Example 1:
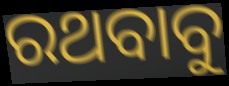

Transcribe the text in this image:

ରଥବାବୁ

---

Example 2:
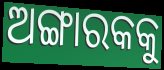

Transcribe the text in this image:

ଅଙ୍ଗାରକକୁ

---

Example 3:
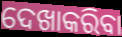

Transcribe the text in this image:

ଦେଖାକରିବା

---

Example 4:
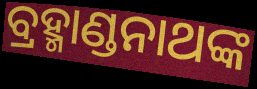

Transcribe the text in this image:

ବ୍ରହ୍ମାଣ୍ଡନାଥଙ୍କ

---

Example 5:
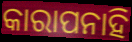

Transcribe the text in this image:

କାରାପନାହି